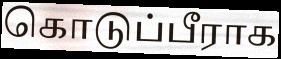
கொடுப்பீராக